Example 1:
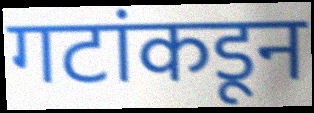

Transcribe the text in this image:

गटांकडून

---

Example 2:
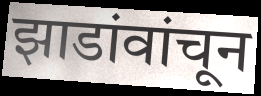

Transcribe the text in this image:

झाडांवांचून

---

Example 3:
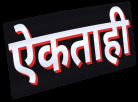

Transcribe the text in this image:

ऐकताही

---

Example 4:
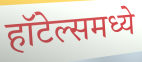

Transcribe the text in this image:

हॉटेल्समध्ये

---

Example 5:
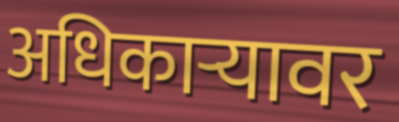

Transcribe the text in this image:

अधिकाऱ्यावर